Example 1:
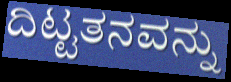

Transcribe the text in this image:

ದಿಟ್ಟತನವನ್ನು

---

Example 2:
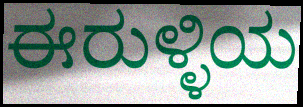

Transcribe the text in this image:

ಈರುಳ್ಳಿಯ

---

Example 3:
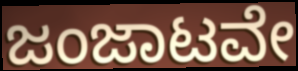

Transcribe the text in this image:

ಜಂಜಾಟವೇ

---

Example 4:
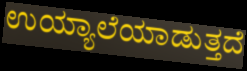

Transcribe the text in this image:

ಉಯ್ಯಾಲೆಯಾಡುತ್ತದೆ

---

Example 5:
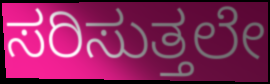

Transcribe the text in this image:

ಸರಿಸುತ್ತಲೇ